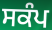
ਸਕੰਪ